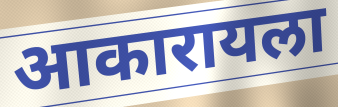
आकारायला